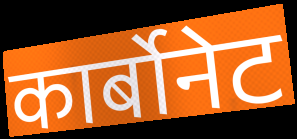
कार्बोनेट